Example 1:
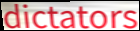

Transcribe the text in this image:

dictators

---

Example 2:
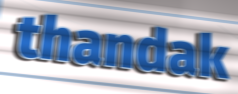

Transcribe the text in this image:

thandak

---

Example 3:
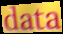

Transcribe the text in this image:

data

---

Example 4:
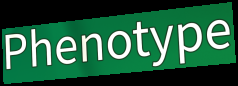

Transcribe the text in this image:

Phenotype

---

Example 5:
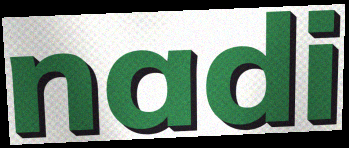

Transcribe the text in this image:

nadi